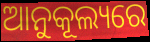
ଆନୁକୂଲ୍ୟରେ